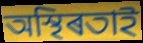
অস্থিৰতাই